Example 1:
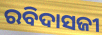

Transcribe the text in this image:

ରବିଦାସଜୀ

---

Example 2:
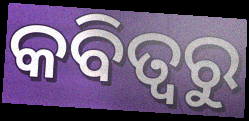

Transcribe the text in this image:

କବିତ୍ଵରୁ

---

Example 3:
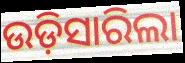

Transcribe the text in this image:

ଉଡ଼ିସାରିଲା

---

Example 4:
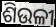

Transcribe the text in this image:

ଶିଉଳୀ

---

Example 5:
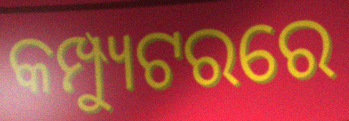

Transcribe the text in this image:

କମ୍ପ୍ୟୁଟରରେ